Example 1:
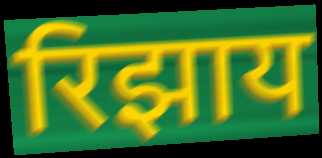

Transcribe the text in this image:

रिझाय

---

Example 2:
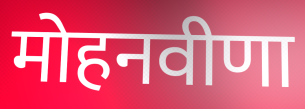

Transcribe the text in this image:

मोहनवीणा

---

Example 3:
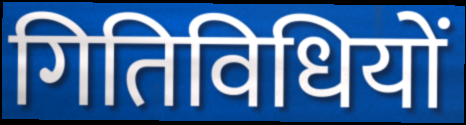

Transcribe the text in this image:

गितिविधियों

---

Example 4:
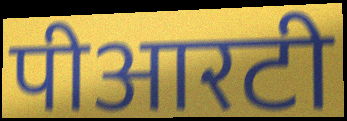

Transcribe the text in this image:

पीआरटी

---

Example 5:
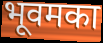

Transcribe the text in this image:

भूवमका